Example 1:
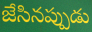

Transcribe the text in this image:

జేసినప్పుడు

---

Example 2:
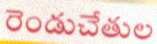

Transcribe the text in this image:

రెండుచేతుల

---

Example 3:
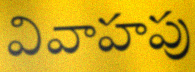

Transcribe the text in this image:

వివాహపు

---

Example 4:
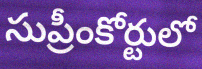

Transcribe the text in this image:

సుప్రీంకోర్టులో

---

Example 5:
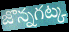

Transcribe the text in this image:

జొన్నగట్క